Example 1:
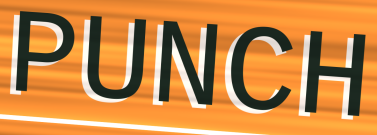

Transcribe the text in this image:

PUNCH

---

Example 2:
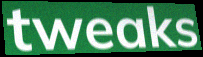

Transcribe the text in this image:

tweaks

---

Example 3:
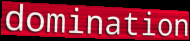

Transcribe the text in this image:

domination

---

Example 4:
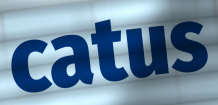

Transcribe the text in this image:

catus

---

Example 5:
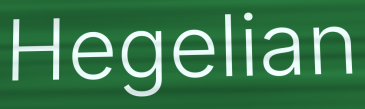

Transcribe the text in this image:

Hegelian